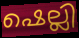
ഷെല്ലി